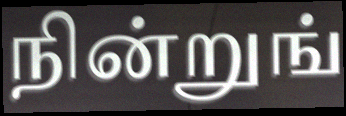
நின்றுங்